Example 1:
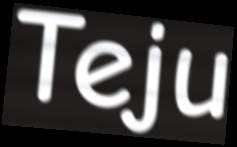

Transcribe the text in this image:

Teju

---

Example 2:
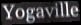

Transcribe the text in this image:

Yogaville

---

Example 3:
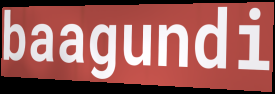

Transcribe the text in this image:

baagundi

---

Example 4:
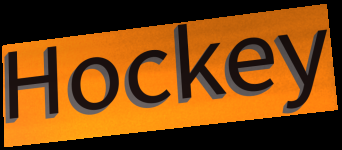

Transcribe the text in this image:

Hockey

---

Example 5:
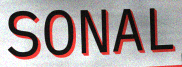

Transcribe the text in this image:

SONAL